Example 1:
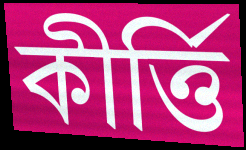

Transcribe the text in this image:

কীৰ্ত্তি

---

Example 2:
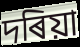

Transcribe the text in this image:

দৰিয়া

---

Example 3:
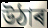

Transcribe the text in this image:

উঠাৰ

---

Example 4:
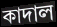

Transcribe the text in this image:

কাদাল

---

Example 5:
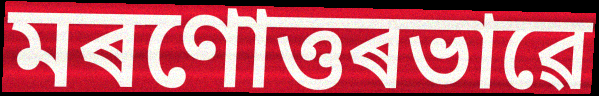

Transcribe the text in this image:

মৰণোত্তৰভাৱে